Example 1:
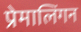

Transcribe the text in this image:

प्रेमालिंगन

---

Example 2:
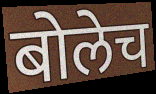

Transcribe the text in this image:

बोलेच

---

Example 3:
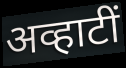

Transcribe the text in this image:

अव्हाटीं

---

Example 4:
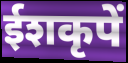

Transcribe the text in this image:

ईशकृपें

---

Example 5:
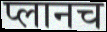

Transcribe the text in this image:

प्लानच